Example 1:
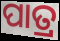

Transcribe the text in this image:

ପାତ୍ର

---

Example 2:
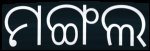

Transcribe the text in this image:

ମଙ୍ଗଲ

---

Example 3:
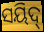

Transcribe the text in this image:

ସୟିଦ୍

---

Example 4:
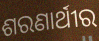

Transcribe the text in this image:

ଶରଣାର୍ଥୀର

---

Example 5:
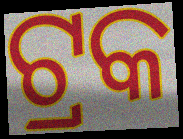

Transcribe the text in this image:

ଟ୍ରକ